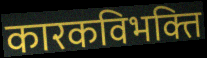
कारकविभक्ति